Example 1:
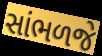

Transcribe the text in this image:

સાંભળજે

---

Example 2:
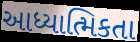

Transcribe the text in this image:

આધ્યાત્મિકતા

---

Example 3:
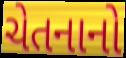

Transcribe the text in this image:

ચેતનાનો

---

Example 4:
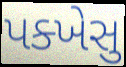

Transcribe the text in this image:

પક્ખેસુ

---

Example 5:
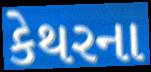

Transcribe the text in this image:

કેથરના